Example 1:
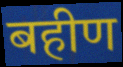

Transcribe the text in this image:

बहीण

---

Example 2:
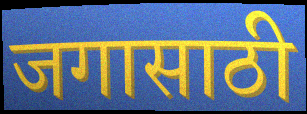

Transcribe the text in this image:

जगासाठी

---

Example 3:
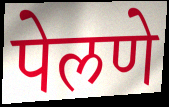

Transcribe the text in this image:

पेलणे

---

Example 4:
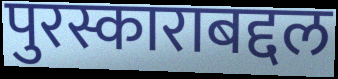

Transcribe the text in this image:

पुरस्काराबद्दल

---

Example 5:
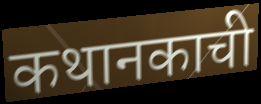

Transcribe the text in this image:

कथानकाची